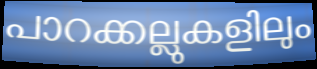
പാറക്കല്ലുകളിലും